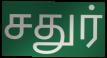
சதுர்